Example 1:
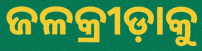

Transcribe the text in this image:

ଜଳକ୍ରୀଡ଼ାକୁ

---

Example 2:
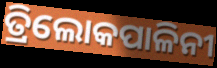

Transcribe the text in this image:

ତ୍ରିଲୋକପାଳିନୀ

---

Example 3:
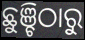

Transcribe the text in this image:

ଛୁଞ୍ଚିଠାରୁ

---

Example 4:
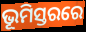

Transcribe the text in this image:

ଭୂମିସ୍ତରରେ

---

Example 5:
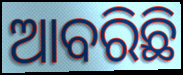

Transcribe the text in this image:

ଆବରିଛି